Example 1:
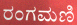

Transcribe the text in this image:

ರಂಗಮಣಿ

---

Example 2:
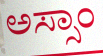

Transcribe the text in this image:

ಅಸ್ಸಾಂ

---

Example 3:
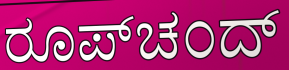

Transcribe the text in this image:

ರೂಪ್‌ಚಂದ್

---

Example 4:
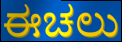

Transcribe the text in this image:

ಈಚಲು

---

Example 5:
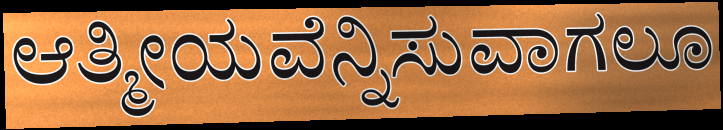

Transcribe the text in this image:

ಆತ್ಮೀಯವೆನ್ನಿಸುವಾಗಲೂ